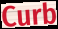
Curb